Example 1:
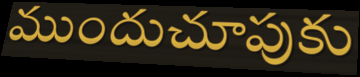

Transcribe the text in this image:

ముందుచూపుకు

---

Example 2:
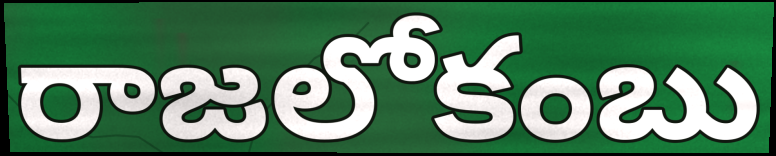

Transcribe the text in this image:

రాజలోకంబు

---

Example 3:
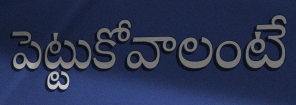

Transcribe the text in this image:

పెట్టుకోవాలంటే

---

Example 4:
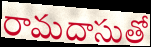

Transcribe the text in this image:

రామదాసుతో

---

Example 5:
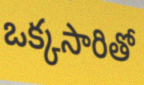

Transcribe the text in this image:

ఒక్కసారితో